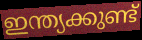
ഇന്ത്യക്കുണ്ട്